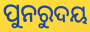
ପୁନରୁଦୟ